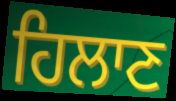
ਹਿਲਾਣ